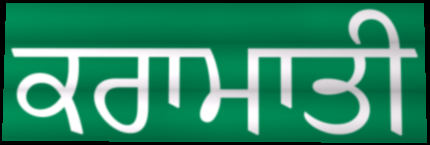
ਕਰਾਮਾਤੀ